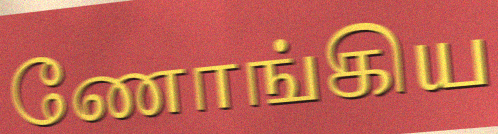
ணோங்கிய